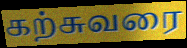
கற்சுவரை